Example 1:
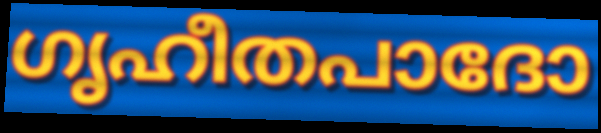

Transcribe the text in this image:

ഗൃഹീതപാദോ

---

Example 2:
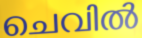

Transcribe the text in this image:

ചെവിൽ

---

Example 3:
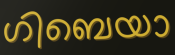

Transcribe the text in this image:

ഗിബെയാ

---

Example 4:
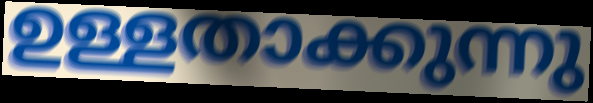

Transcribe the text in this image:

ഉള്ളതാക്കുന്നു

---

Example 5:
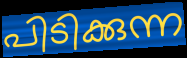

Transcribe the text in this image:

പിടിക്കുന്ന